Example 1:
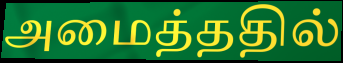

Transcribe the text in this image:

அமைத்ததில்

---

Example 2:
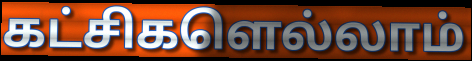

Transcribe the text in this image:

கட்சிகளெல்லாம்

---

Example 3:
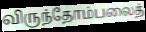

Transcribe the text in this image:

விருந்தோம்பலைத்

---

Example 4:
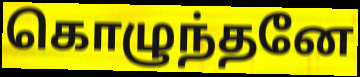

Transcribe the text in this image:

கொழுந்தனே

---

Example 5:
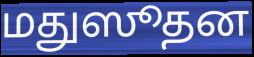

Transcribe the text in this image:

மதுஸூதன